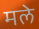
मले